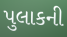
પુલાકની